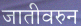
जातीवरुन